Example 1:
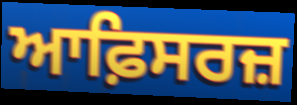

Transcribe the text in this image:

ਆਫ਼ਿਸਰਜ਼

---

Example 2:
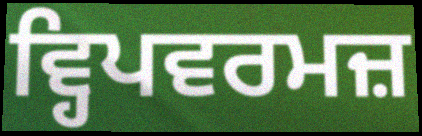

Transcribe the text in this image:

ਵ੍ਹਿਪਵਰਮਜ਼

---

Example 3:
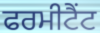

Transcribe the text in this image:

ਫਰਮੀਟੈਂਟ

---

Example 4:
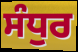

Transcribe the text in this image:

ਸੰਧੁਰ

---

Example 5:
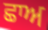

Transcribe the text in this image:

ਛਾਅ